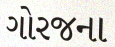
ગોરજના